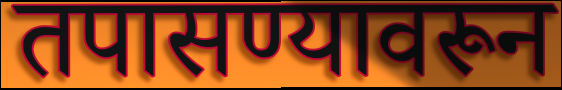
तपासण्यावरून